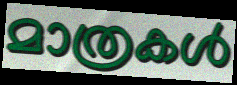
മാത്രകൾ